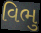
વિભુ